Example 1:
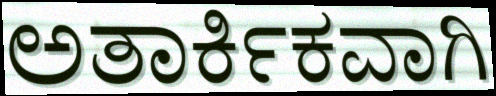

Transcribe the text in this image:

ಅತಾರ್ಕಿಕವಾಗಿ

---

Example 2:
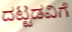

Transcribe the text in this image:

ದಟ್ಟಡವಿಗೆ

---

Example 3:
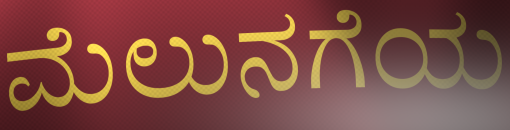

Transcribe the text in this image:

ಮೆಲುನಗೆಯ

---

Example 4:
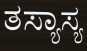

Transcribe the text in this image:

ತಸ್ಯಾಸ್ಯ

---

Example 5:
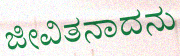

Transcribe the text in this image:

ಜೀವಿತನಾದನು